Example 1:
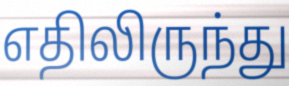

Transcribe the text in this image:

எதிலிருந்து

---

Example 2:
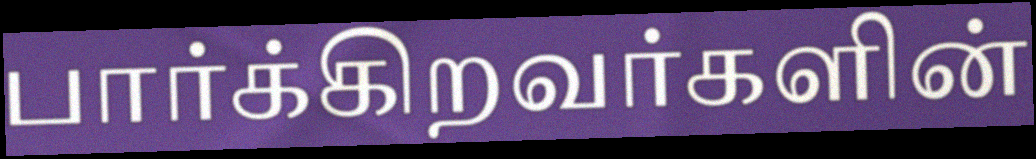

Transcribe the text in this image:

பார்க்கிறவர்களின்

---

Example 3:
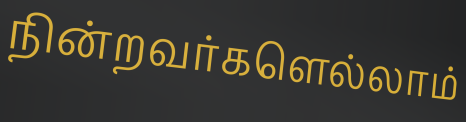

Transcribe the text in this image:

நின்றவர்களெல்லாம்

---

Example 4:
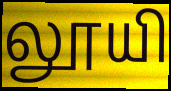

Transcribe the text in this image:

லூயி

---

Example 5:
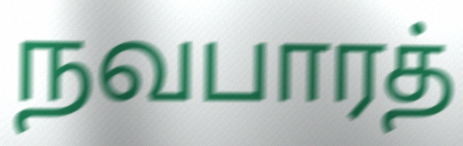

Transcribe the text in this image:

நவபாரத்